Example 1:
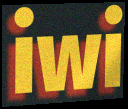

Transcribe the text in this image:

iwi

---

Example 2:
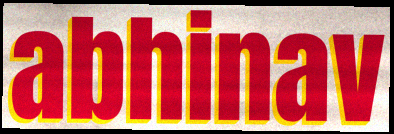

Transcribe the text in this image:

abhinav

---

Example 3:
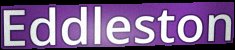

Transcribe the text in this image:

Eddleston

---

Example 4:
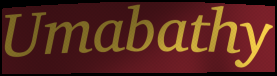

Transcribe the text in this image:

Umabathy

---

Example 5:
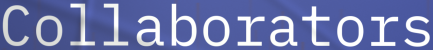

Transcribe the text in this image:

Collaborators